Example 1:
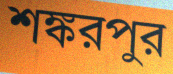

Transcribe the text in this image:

শঙ্করপুর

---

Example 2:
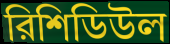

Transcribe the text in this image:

রিশিডিউল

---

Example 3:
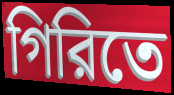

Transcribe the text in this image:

গিরিতে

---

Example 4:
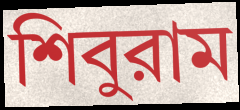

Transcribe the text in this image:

শিবুরাম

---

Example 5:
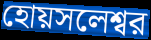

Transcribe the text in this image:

হোয়সলেশ্বর